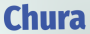
Chura